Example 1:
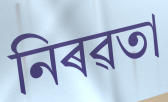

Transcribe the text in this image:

নিৰৱতা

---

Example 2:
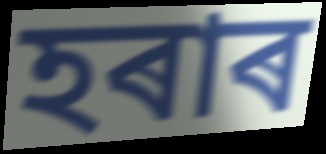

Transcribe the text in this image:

হৰাৰ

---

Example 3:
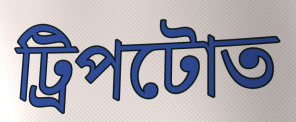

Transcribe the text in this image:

ট্ৰিপটোত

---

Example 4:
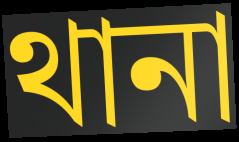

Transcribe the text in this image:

থানা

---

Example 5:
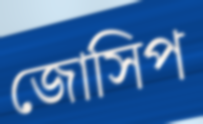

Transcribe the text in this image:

জোসিপ